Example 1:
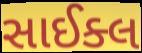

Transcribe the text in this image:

સાઈક્લ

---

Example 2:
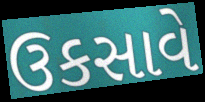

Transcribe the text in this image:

ઉકસાવે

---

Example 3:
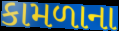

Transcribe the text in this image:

કામળાના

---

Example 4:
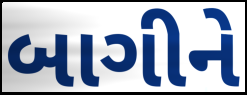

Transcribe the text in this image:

બાગીને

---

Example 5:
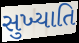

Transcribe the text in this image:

સુખ્યાતિ